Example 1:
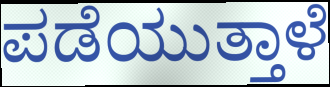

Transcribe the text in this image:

ಪಡೆಯುತ್ತಾಳೆ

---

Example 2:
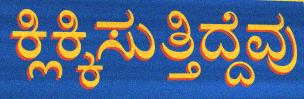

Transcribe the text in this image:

ಕ್ಲಿಕ್ಕಿಸುತ್ತಿದ್ದೆವು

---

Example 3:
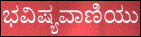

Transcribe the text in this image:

ಭವಿಷ್ಯವಾಣಿಯು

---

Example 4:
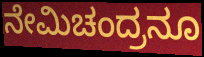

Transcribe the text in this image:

ನೇಮಿಚಂದ್ರನೂ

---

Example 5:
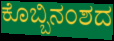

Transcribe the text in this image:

ಕೊಬ್ಬಿನಂಶದ